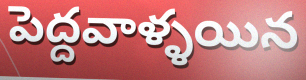
పెద్దవాళ్ళయిన